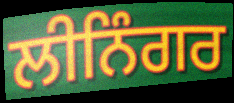
ਲੀਨਿੰਗਰ